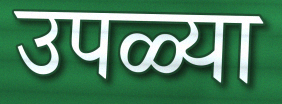
उपळ्या